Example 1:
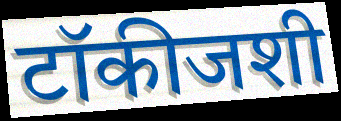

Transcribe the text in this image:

टॉकीजशी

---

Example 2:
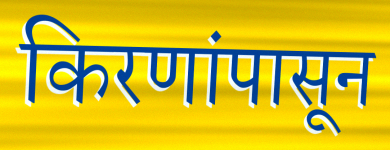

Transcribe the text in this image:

किरणांपासून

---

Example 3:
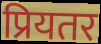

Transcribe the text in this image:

प्रियतर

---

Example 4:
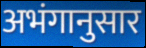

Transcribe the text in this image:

अभंगानुसार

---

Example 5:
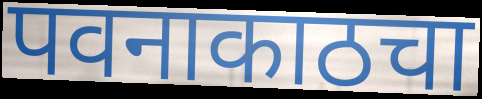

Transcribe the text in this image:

पवनाकाठचा